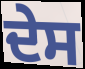
ਦੇਸ